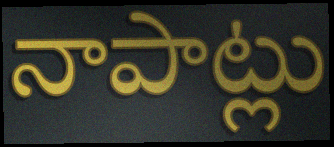
నాపాట్లు